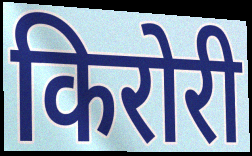
किरोरी